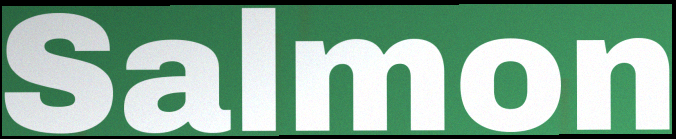
Salmon